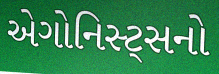
એગોનિસ્ટ્સનો